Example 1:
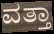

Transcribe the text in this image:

ವತ್ತಾ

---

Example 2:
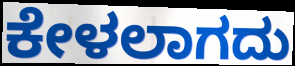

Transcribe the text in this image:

ಕೇಳಲಾಗದು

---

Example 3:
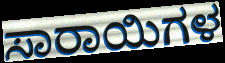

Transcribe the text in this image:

ಸಾರಾಯಿಗಳ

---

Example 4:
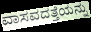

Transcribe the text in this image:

ವಾಸವದತ್ತೆಯನ್ನು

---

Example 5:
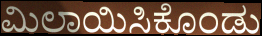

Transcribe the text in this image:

ಮಿಲಾಯಿಸಿಕೊಂಡು